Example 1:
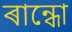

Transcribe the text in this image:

ৰান্ধো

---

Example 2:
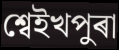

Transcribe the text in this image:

শ্বেইখপুৰা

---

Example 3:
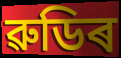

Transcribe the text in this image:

ৱুডিৰ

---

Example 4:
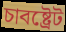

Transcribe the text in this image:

চাবষ্ট্ৰেট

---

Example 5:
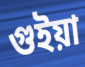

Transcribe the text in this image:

গুইয়া